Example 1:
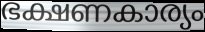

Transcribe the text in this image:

ഭക്ഷണകാര്യം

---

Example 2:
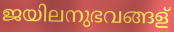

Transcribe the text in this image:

ജയിലനുഭവങ്ങള്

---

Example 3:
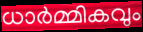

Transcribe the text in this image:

ധാർമ്മികവും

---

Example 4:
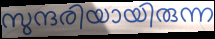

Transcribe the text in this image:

സുന്ദരിയായിരുന്ന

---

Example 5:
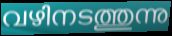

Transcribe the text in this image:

വഴിനടത്തുന്നു